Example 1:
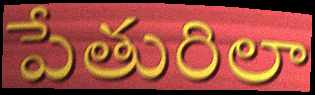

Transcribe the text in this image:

పేతురిలా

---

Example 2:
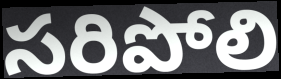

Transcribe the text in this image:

సరిపోలి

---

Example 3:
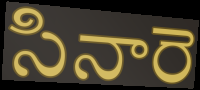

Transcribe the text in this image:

సినారె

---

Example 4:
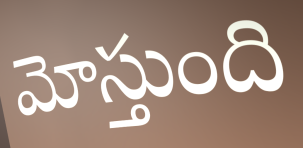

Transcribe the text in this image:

మోస్తుంది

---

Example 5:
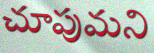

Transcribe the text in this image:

చూపుమని